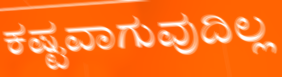
ಕಷ್ಟವಾಗುವುದಿಲ್ಲ